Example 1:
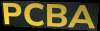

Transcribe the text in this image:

PCBA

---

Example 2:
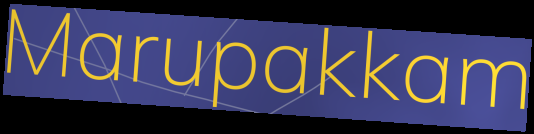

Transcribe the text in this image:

Marupakkam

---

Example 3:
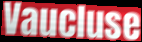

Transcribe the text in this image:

Vaucluse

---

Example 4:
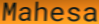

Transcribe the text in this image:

Mahesa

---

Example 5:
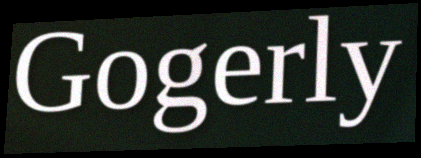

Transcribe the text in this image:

Gogerly